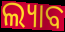
ଲ୍ୟାବ